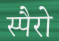
स्पैरो